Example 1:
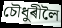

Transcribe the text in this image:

চৌধুৰীলৈ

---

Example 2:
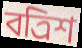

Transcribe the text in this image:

বত্ৰিশ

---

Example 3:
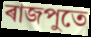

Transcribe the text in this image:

ৰাজপুতে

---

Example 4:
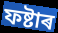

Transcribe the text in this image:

ফষ্টাৰ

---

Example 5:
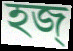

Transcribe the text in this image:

হজ্